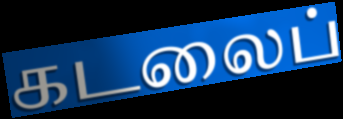
கடலைப்